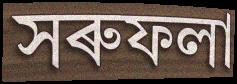
সৰুফলা